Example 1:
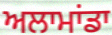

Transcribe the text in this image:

ਅਲਾਮਾਂਡਾ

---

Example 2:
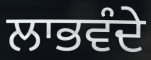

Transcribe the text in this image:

ਲਾਭਵੰਦੇ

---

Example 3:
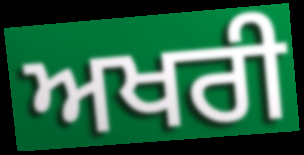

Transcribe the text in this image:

ਅਖਰੀ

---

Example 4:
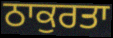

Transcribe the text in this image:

ਠਾਕੁਰਤਾ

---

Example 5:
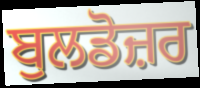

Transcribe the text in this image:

ਬੁਲਡੋਜ਼ਰ